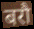
बरौ